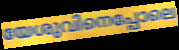
യേശുവിനെപ്പോലെ